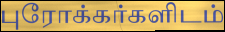
புரோக்கர்களிடம்